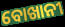
ବୋଖାନୀ